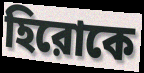
হিরোকে